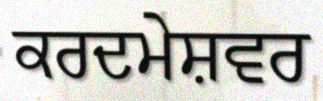
ਕਰਦਮੇਸ਼ਵਰ